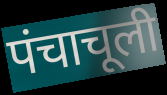
पंचाचूली